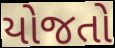
યોજતો